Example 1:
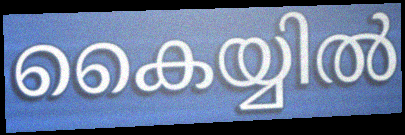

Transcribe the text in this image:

കൈയ്യിൽ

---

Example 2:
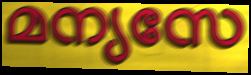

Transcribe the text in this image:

മന്യസേ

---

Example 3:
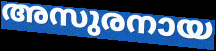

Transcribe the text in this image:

അസുരനായ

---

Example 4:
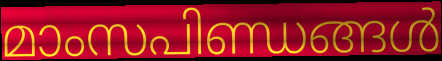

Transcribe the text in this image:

മാംസപിണ്ഡങ്ങൾ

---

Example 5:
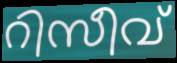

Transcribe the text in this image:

റിസീവ്